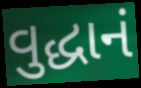
વુદ્ધાનં